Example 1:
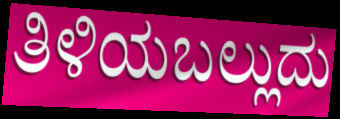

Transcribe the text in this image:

ತಿಳಿಯಬಲ್ಲುದು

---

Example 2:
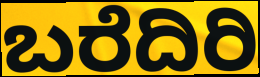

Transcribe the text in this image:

ಬರೆದಿರಿ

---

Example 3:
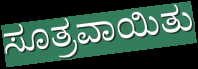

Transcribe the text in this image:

ಸೂತ್ರವಾಯಿತು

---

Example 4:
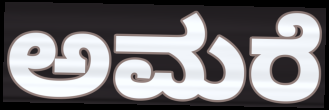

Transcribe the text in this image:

ಅಮರೆ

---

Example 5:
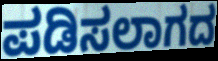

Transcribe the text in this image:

ಪಡಿಸಲಾಗದ